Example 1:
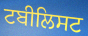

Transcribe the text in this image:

ਟਬੀਲਿਸਟ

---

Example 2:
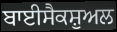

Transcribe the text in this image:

ਬਾਈਸੈਕਸ਼ੁਅਲ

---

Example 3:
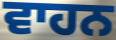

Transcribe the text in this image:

ਵਾਹਨ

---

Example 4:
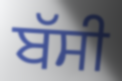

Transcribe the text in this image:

ਬੱਸੀ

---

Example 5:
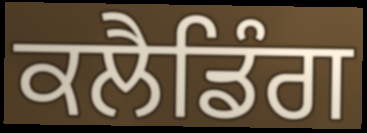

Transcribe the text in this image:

ਕਲੈਡਿੰਗ